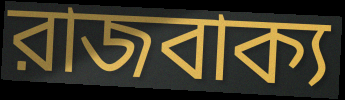
রাজবাক্য